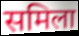
समिला